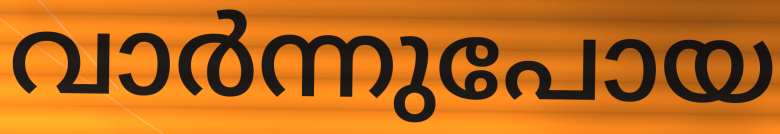
വാർന്നുപോയ